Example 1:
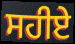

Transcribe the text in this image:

ਸਹੀਏ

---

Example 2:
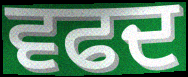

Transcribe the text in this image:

ਵਫਦ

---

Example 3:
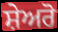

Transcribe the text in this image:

ਸ਼ੇਅਰੋ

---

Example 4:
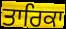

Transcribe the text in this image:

ਤਾਰਿਕਾ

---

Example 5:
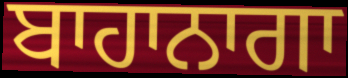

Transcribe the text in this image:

ਬਾਹਾਨਾਗਾ